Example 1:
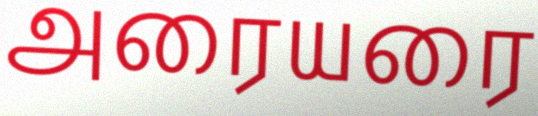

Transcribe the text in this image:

அரையரை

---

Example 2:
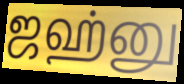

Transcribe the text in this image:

ஜஹ்னு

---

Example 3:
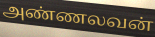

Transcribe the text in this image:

அண்ணலவன்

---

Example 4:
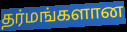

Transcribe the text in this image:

தர்மங்களான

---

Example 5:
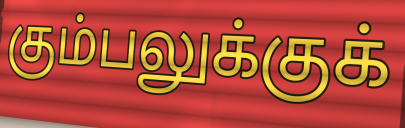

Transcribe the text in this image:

கும்பலுக்குக்